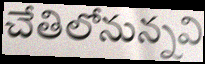
చేతిలోనున్నవి